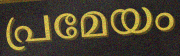
പ്രമേയം